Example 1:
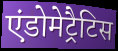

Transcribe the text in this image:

एंडोमेट्रैटिस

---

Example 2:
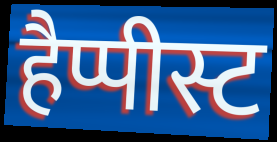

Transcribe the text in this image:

हैप्पीस्ट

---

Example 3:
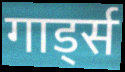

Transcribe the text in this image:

गार्ड्स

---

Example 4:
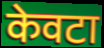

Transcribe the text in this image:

केवटा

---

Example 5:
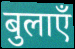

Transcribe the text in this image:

बुलाएँ